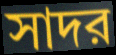
সাদর